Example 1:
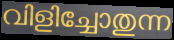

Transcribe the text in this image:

വിളിച്ചോതുന്ന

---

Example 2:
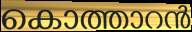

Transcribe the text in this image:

കൊത്താറൻ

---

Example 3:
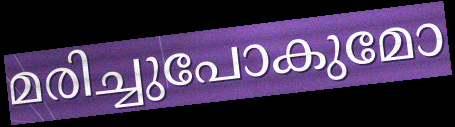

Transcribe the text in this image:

മരിച്ചുപോകുമോ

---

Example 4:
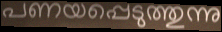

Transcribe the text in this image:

പണയപ്പെടുത്തുന്നു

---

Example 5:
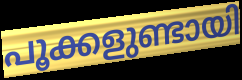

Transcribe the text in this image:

പൂക്കളുണ്ടായി